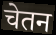
चेतन